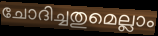
ചോദിച്ചതുമെല്ലാം